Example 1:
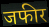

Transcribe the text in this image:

जफीर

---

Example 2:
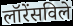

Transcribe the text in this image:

लॉरेंसविले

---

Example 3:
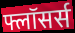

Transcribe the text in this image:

फ्लॉसर्स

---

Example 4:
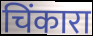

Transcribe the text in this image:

चिंकारा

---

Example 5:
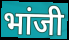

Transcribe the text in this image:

भांजी